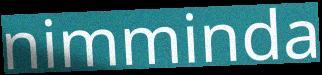
nimminda